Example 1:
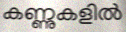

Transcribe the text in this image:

കണ്ണുകളിൽ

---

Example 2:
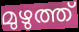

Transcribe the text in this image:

മുഴുത്ത്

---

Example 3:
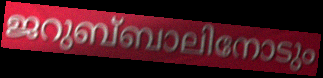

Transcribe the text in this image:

ജറുബ്‌ബാലിനോടും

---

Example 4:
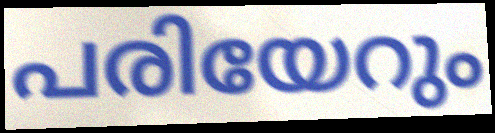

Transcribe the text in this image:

പരിയേറും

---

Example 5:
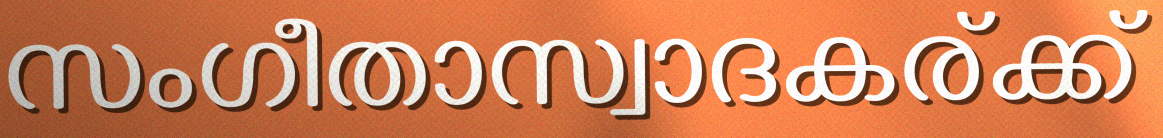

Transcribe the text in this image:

സംഗീതാസ്വാദകര്ക്ക്